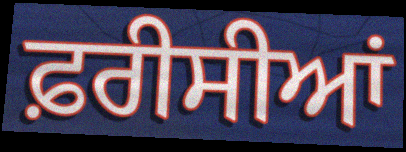
ਫ਼ਰੀਸੀਆਂ